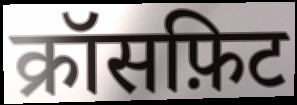
क्रॉसफ़िट